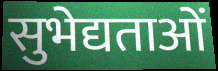
सुभेद्यताओं